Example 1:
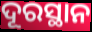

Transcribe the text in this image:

ଦୂରସ୍ଥାନ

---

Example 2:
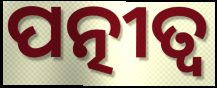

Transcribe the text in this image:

ପତ୍ନୀତ୍ୱ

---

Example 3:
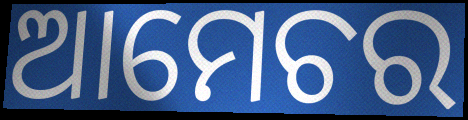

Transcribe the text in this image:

ଆମେଚର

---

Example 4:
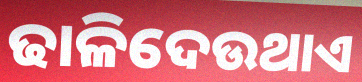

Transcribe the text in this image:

ଢାଳିଦେଉଥାଏ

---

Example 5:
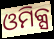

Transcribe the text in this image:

ଓମିକ୍ସ